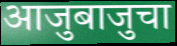
आजुबाजुचा